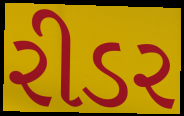
રીડર